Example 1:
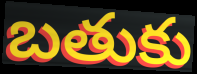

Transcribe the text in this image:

బతుకు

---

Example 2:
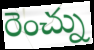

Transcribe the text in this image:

రెంచ్ను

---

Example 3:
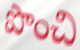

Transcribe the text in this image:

పొంచి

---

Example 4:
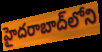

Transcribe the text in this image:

హైదరాబాద్‌లోని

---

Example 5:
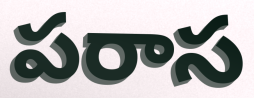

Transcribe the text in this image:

పరాస